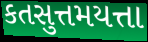
કતસુત્તમયત્તા